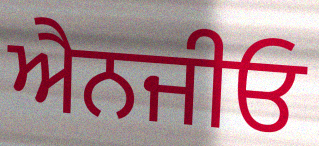
ਐਨਜੀਓ